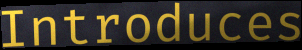
Introduces